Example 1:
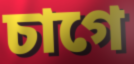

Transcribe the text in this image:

চাগে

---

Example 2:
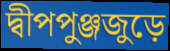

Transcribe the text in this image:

দ্বীপপুঞ্জজুড়ে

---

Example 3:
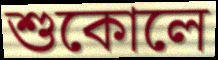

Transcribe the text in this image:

শুকোলে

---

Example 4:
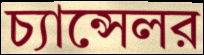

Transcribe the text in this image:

চ্যান্সেলর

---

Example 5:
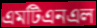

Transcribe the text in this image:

এমটিএনএল